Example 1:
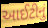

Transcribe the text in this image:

આઈટીનું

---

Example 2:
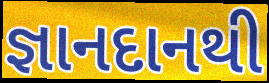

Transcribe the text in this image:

જ્ઞાનદાનથી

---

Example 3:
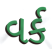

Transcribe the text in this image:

વર્ક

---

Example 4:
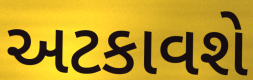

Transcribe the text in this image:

અટકાવશે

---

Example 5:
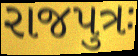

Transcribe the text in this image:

રાજપુત્રઃ